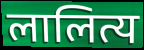
लालित्य